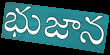
భుజాన